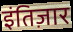
इंतिज़ार